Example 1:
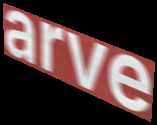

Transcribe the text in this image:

arve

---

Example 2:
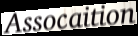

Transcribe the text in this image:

Assocaition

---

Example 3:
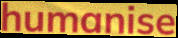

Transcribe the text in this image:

humanise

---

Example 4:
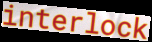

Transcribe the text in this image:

interlock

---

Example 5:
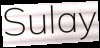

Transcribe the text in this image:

Sulay